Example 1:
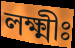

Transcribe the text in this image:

লক্ষ্মীঃ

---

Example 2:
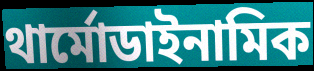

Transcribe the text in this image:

থার্মোডাইনামিক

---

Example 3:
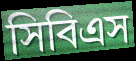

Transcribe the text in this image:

সিবিএস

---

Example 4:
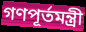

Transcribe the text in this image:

গণপূর্তমন্ত্রী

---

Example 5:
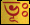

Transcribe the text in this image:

ভূঃ